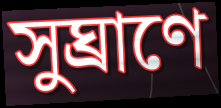
সুঘ্রাণে